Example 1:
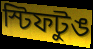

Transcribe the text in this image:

স্টিফটুঙ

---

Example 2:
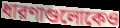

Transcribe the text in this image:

ধারণাগুলোকেও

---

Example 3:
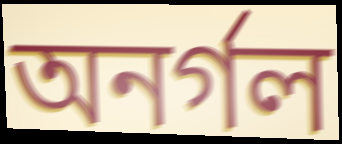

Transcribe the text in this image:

অনর্গল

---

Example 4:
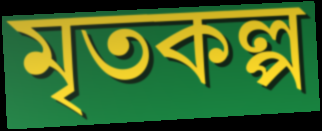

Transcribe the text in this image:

মৃতকল্প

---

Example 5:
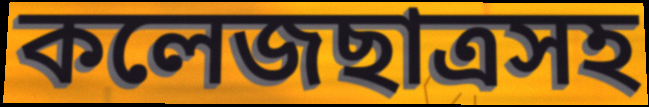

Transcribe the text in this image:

কলেজছাত্রসহ